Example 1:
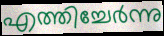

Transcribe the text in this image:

എത്തിച്ചേർന്നു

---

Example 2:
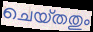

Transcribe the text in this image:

ചെയ്‌തതും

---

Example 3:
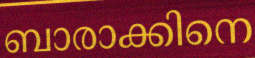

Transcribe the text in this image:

ബാരാക്കിനെ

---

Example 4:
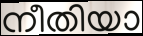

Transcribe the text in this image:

നീതിയാ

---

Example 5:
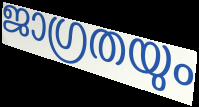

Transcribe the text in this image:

ജാഗ്രതയും